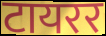
टायरर